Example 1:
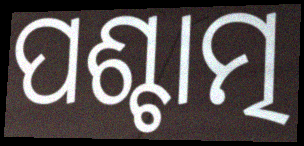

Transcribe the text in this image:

ପଶ୍ଚାତ୍ମ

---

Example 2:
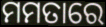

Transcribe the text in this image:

ମମତାରେ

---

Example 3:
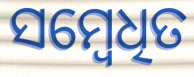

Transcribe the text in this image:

ସମ୍ବେଧିତ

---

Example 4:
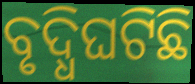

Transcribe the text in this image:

ବୃଦ୍ଧିଘଟିଛି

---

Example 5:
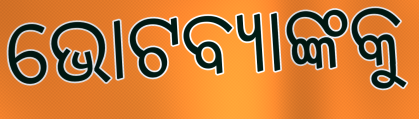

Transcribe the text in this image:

ଭୋଟବ୍ୟାଙ୍କକୁ